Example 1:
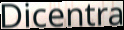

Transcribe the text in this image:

Dicentra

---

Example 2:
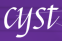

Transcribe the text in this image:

cyst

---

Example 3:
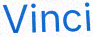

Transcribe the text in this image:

Vinci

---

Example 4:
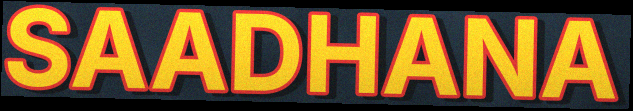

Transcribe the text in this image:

SAADHANA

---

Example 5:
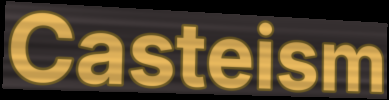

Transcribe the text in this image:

Casteism